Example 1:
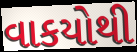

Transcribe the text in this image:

વાકયોથી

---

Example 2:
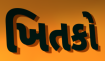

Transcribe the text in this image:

ખિતકો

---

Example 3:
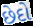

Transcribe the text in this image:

છેદો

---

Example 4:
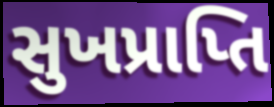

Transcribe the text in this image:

સુખપ્રાપ્તિ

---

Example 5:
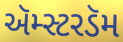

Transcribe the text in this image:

ઍમ્સ્ટરડૅમ